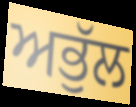
ਅਭੁੱਲ